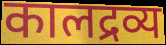
कालद्रव्य